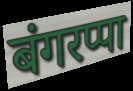
बंगरप्पा